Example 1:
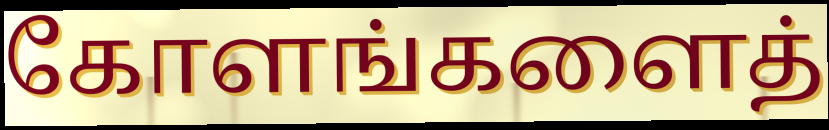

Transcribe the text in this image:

கோளங்களைத்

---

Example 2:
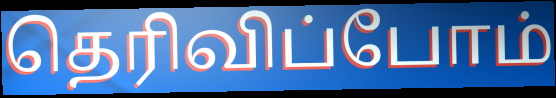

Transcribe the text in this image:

தெரிவிப்போம்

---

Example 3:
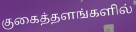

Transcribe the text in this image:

குகைத்தளங்களில்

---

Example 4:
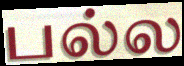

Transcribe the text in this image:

பல்ல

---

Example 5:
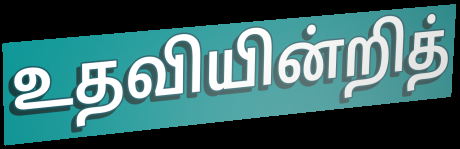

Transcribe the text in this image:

உதவியின்றித்